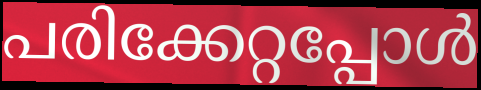
പരിക്കേറ്റപ്പോൾ